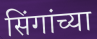
सिंगांच्या